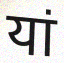
यां